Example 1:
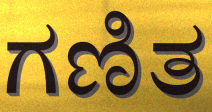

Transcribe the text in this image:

ಗಣಿತ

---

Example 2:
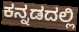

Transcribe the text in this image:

ಕನ್ನಡದಲ್ಲಿ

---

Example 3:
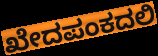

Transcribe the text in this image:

ಖೇದಪಂಕದಲಿ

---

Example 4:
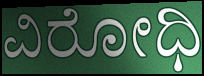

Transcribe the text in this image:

ವಿರೋಧಿ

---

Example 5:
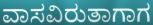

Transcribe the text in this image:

ವಾಸವಿರುತಾಗಾಗ